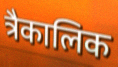
त्रैकालिक